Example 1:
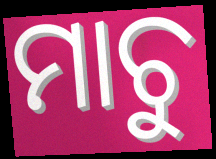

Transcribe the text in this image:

ମାଚୁ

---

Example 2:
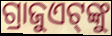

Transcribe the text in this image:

ଗ୍ରାଜୁଏଟ୍‌ଙ୍କୁ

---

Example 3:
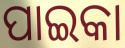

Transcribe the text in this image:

ପାଇକା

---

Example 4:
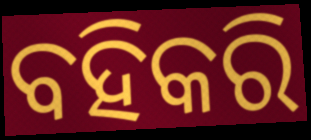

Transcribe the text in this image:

ବହିକରି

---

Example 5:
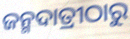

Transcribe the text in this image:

ଜନ୍ମଦାତ୍ରୀଠାରୁ